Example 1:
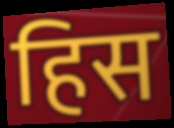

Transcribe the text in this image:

हिस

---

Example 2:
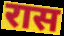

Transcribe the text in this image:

रास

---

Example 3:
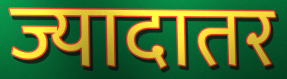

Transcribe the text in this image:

ज्‍यादातर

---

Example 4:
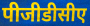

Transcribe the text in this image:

पीजीडीसीए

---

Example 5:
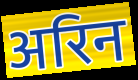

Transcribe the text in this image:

अरिन